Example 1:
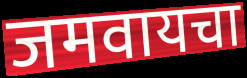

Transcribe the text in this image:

जमवायचा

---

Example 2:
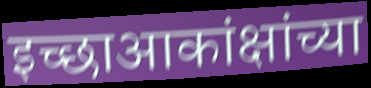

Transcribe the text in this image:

इच्छाआकांक्षांच्या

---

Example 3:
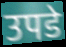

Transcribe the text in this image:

उपडे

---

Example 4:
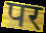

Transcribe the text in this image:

पर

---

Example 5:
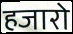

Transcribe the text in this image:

हजारो